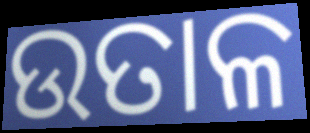
ଉତାଳ